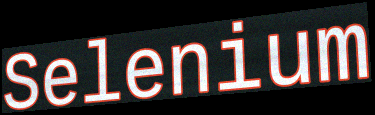
Selenium